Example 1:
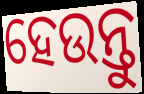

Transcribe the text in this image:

ହେଉନ୍ତୁ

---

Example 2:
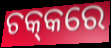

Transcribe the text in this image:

ଚକ୍‌କରେ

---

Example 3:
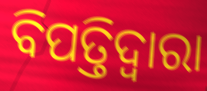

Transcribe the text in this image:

ବିପତ୍ତିଦ୍ୱାରା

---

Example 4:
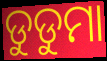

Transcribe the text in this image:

ଡୁଡୁମା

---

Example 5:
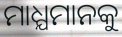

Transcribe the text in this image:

ମାଧ୍ଯମାନକୁ